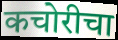
कचोरीचा